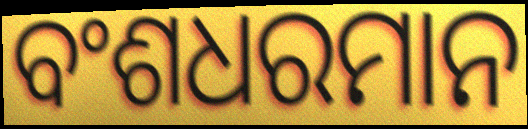
ବଂଶଧରମାନ